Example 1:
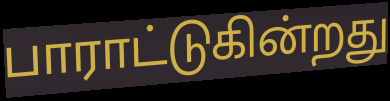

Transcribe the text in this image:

பாராட்டுகின்றது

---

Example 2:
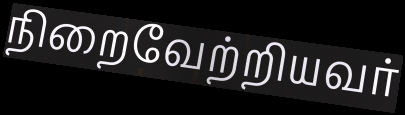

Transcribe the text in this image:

நிறைவேற்றியவர்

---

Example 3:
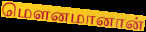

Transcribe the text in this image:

மௌனமானான்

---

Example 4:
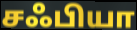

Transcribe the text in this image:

சஃபியா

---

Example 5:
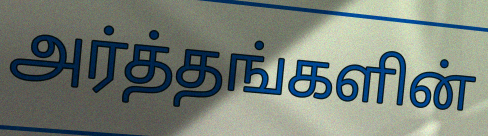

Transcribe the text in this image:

அர்த்தங்களின்